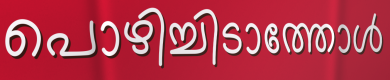
പൊഴിച്ചിടാത്തോൾ